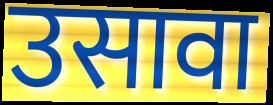
उसावा